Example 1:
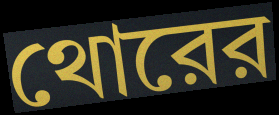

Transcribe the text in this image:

থোরের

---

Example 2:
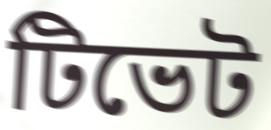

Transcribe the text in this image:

টিভেট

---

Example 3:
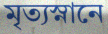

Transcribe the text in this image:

মৃত্যস্নানে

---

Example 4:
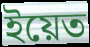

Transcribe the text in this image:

ইয়েত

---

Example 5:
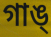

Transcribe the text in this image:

গাঙ্